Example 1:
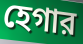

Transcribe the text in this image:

হেগার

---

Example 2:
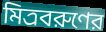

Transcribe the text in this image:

মিত্রবরুণের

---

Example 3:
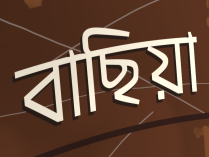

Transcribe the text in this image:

বাছিয়া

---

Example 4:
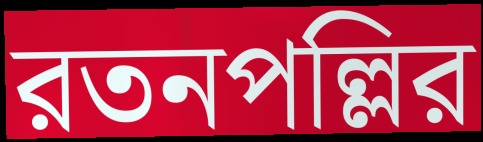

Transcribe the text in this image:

রতনপল্লির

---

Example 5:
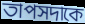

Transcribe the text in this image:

তাপসদাকে